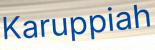
Karuppiah